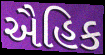
ઐહિક